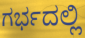
ಗರ್ಭದಲ್ಲಿ